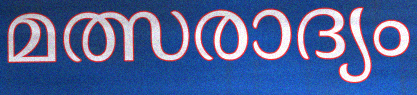
മത്സരാദ്യം